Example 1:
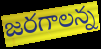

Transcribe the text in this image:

జరగాలన్న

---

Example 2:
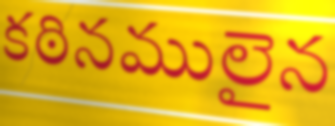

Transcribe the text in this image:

కఠినములైన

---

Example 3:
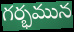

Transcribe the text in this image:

గర్భమున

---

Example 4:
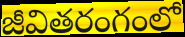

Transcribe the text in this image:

జీవితరంగంలో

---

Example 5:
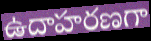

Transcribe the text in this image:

ఉదాహరణగా